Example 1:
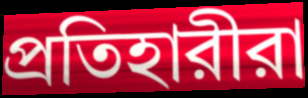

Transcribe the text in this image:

প্রতিহারীরা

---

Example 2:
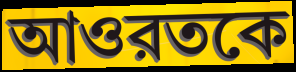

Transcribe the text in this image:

আওরতকে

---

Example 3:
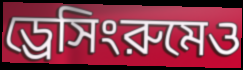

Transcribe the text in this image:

ড্রেসিংরুমেও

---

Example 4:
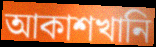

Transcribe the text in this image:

আকাশখানি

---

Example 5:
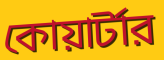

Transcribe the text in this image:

কোয়ার্টার